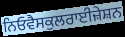
ਨਿਓਵੈਸਕੁਲਰਾਈਜ਼ੇਸ਼ਨ